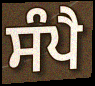
ਸੰਪੈ